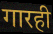
गारही